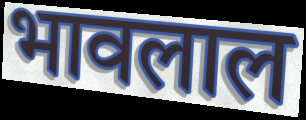
भावलाल